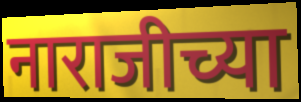
नाराजीच्या